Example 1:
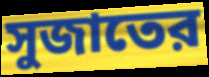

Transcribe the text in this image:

সুজাতের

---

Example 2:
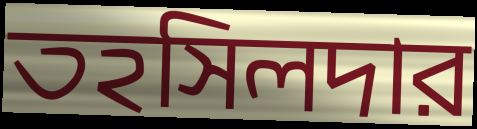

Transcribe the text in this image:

তহসিলদার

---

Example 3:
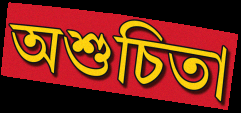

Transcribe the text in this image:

অশুচিতা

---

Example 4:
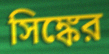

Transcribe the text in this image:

সিঙ্কের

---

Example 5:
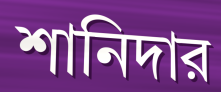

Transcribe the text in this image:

শানিদার